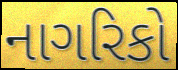
નાગરિકો